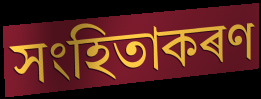
সংহিতাকৰণ